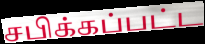
சபிக்கப்பட்ட